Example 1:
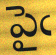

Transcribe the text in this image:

పైఁ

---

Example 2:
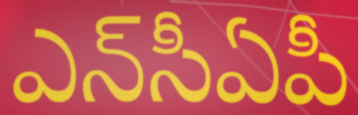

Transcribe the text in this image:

ఎన్‌సీఏపీ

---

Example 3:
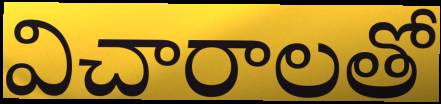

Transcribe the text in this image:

విచారాలతో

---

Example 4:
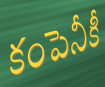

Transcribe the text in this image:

కంపెనీకీ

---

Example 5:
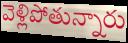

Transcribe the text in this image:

వెళ్లిపోతున్నారు